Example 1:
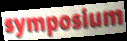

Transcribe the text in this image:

symposium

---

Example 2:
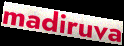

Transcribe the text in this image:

madiruva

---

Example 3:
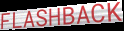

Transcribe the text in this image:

FLASHBACK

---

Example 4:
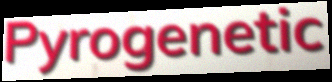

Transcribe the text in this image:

Pyrogenetic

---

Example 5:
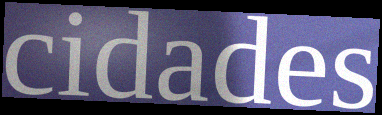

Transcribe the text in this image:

cidades